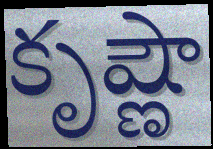
కృష్ణౌ